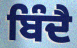
ਬਿੰਦੈ